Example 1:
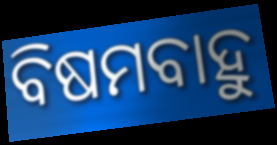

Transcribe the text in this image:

ବିଷମବାହୁ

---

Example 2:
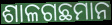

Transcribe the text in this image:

ଶାଳଗଛମାନ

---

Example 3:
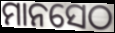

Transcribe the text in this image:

ମାନସେଠ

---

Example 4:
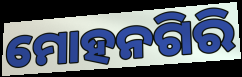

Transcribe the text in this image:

ମୋହନଗିରି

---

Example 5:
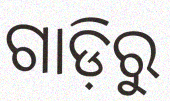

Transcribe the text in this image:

ଗାଡ଼ିରୁ